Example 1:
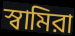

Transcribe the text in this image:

স্বামিরা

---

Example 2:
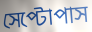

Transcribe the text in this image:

সেপ্টোপাস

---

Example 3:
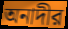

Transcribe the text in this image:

অনাদীর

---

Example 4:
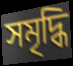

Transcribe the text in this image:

সমৃদ্ধি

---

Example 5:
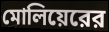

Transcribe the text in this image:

মোলিয়েরের